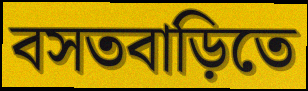
বসতবাড়িতে